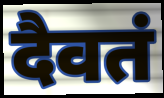
दैवतं